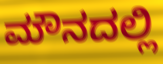
ಮೌನದಲ್ಲಿ